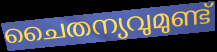
ചൈതന്യവുമുണ്ട്